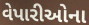
વેપારીઓના